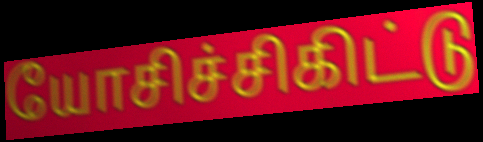
யோசிச்சிகிட்டு